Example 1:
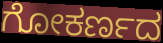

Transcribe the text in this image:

ಗೋಕರ್ಣದ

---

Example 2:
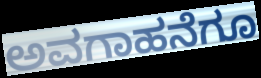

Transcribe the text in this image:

ಅವಗಾಹನೆಗೂ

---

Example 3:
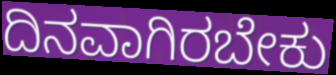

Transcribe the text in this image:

ದಿನವಾಗಿರಬೇಕು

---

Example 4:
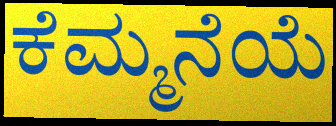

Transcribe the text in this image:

ಕೆಮ್ಮನೆಯೆ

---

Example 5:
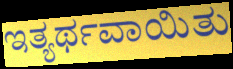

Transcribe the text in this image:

ಇತ್ಯರ್ಥವಾಯಿತು